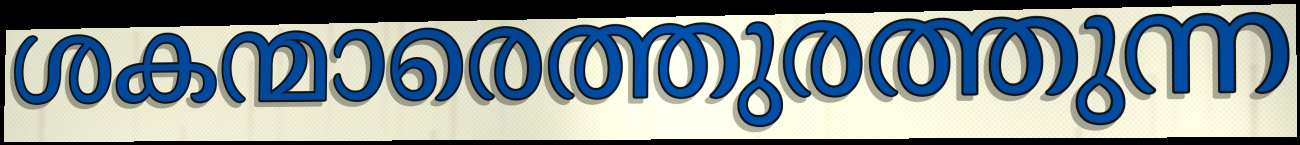
ശകന്മാരെത്തുരത്തുന്ന